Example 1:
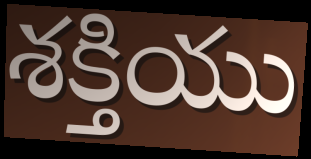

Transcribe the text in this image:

శక్తియు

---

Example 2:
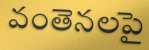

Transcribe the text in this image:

వంతెనలపై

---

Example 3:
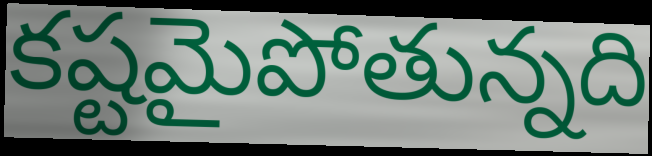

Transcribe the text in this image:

కష్టమైపోతున్నది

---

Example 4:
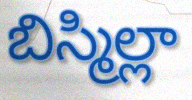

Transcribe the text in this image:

బిస్మిల్లా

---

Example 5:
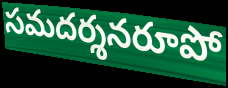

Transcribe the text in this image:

సమదర్శనరూపో